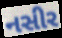
નસીર